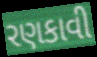
રણકાવી